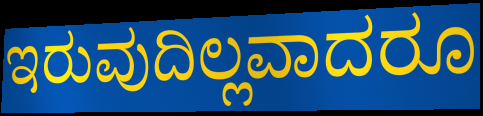
ಇರುವುದಿಲ್ಲವಾದರೂ